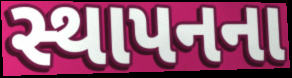
સ્થાપનના